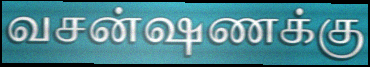
வசன்ஷணக்கு